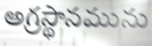
అగ్రస్థానమును